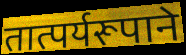
तात्पर्यरूपाने